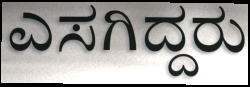
ಎಸಗಿದ್ದರು